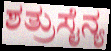
ಶತ್ರುಸೈನ್ಯ